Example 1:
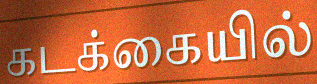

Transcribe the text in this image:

கடக்கையில்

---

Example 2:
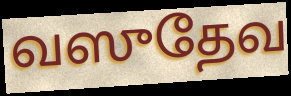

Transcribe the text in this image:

வஸுதேவ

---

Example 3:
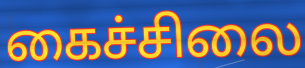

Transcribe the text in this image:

கைச்சிலை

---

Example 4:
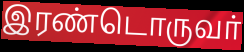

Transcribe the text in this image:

இரண்டொருவர்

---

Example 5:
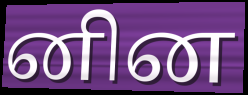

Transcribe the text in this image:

னின